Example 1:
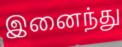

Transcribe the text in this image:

இனைந்து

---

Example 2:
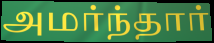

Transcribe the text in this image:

அமர்ந்தார்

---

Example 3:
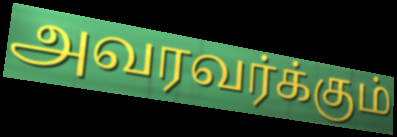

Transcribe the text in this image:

அவரவர்க்கும்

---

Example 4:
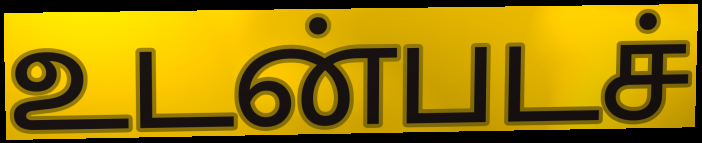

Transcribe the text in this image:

உடன்படச்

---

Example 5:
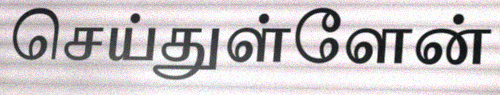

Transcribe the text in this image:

செய்துள்ளேன்